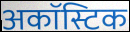
अकॉस्टिक